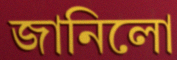
জানিলো